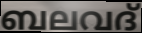
ബലവദ്